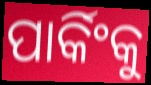
ପାର୍କିଂକୁ